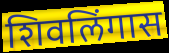
शिवलिंगास